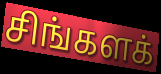
சிங்களக்